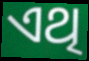
ଏଥି